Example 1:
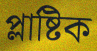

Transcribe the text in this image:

প্লাষ্টিক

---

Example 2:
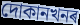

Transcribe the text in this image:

দোকানখনৰ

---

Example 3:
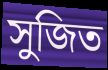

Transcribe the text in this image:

সুজিত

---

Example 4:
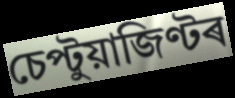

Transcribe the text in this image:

চেপ্টুয়াজিণ্টৰ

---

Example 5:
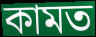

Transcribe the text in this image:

কামত